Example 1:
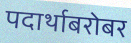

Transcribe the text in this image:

पदार्थाबरोबर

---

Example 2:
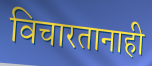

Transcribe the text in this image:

विचारतानाही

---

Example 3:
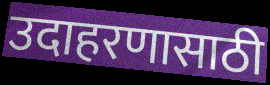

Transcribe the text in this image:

उदाहरणासाठी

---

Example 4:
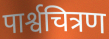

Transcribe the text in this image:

पार्श्वचित्रण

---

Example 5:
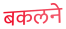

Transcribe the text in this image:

बकलने